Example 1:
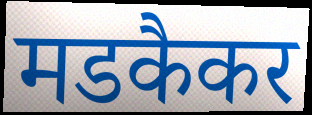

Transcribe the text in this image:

मडकैकर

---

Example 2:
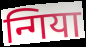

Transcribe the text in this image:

न्गिया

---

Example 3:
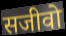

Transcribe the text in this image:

सजीवो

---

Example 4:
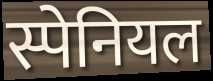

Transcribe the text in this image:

स्पेनियल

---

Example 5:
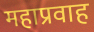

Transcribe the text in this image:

महाप्रवाह